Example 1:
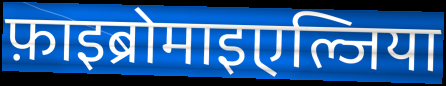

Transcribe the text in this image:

फ़ाइब्रोमाइएल्जिया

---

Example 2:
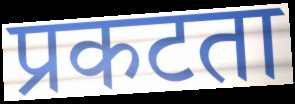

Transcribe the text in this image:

प्रकटता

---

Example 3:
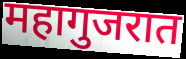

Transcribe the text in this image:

महागुजरात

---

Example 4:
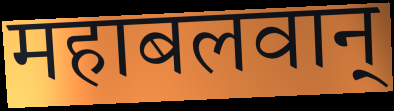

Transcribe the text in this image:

महाबलवान्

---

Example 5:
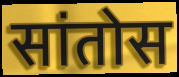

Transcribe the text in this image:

सांतोस